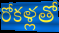
రోకళ్లతో